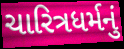
ચારિત્રધર્મનું